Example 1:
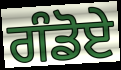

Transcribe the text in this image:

ਗੰਡੋਏ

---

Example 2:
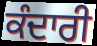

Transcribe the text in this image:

ਕੰਦਾਰੀ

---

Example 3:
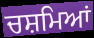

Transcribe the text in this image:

ਚਸ਼ਮਿਆਂ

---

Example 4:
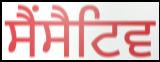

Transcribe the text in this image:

ਸੈਂਸੈਟਿਵ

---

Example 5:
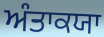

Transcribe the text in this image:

ਅੰਤਾਕਯਾ